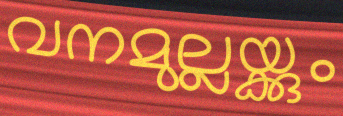
വനമുല്ലയ്ക്കും